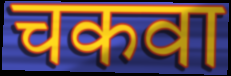
चकवा